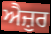
ਐਜ਼ੁਰ